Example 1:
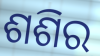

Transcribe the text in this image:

ଶଶିର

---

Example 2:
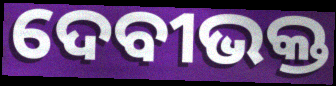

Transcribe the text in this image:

ଦେବୀଭକ୍ତ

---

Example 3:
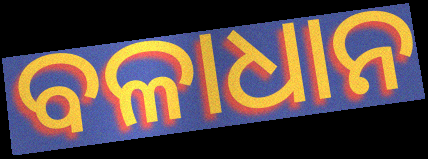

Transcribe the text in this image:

ବଳାଧାନ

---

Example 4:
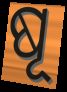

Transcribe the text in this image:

ଷୂ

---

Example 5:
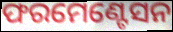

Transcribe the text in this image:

ଫରମେଣ୍ଟେସନ